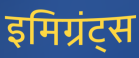
इमिग्रंट्स